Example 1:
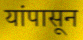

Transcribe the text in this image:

यांपासून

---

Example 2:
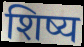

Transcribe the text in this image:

शिष्य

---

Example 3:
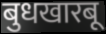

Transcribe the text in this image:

बुधखारबू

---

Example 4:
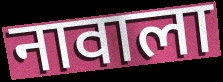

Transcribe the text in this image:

नावाला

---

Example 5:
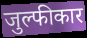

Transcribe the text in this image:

जुल्फीकार